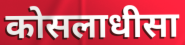
कोसलाधीसा